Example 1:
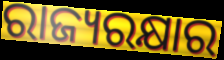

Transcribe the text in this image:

ରାଜ୍ୟରକ୍ଷାର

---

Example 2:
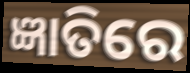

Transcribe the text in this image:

ଜ୍ଞାତିରେ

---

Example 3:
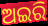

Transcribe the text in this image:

ଅଇରି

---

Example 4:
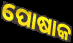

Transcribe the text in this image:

ପୋଷାକ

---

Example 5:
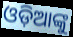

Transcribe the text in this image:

ଓଡ଼ିଆଙ୍କୁ